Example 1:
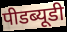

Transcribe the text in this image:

पीडब्यूडी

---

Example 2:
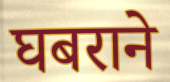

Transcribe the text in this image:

घबराने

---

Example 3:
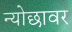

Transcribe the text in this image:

न्योछावर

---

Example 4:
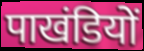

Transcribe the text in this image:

पाखंडियों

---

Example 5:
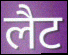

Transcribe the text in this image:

लैट